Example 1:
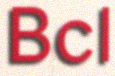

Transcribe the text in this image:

Bcl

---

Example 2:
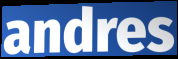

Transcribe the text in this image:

andres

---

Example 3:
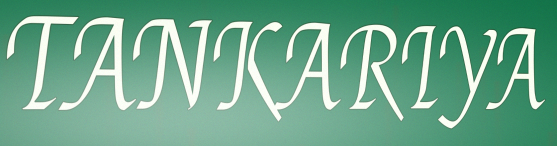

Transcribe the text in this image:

TANKARIYA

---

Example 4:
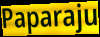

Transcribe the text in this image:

Paparaju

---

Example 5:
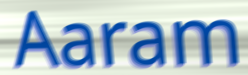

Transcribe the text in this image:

Aaram